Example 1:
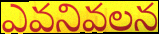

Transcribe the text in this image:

ఎవనివలన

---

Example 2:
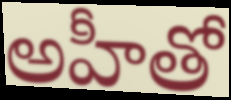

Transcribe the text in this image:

అహీతో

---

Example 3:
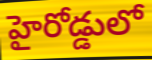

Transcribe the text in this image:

హైరోడ్డులో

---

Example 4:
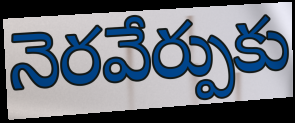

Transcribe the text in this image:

నెరవేర్పుకు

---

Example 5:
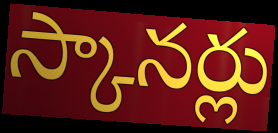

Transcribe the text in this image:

స్కానర్లు